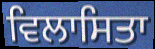
ਵਿਲਾਸਿਤਾ